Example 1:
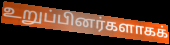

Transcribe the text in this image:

உறுப்பினர்களாகக்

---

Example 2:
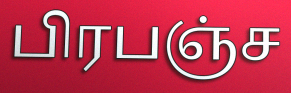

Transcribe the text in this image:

பிரபஞ்ச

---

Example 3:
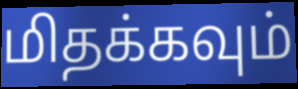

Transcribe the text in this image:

மிதக்கவும்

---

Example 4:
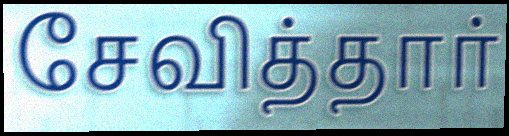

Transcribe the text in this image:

சேவித்தார்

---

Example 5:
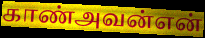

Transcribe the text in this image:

காண்அவன்என்